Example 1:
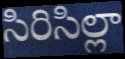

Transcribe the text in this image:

సిరిసిల్లా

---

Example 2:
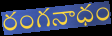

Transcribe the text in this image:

రంగనాధం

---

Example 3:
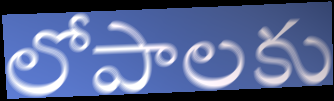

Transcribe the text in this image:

లోపాలకు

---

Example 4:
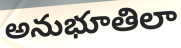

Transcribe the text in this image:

అనుభూతిలా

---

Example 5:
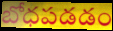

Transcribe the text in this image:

బోధపడడం